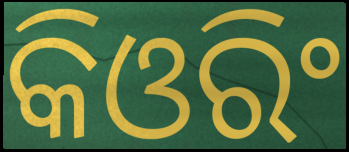
କିଓରିଂ